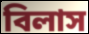
বিলাস